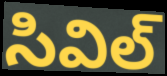
సివిల్